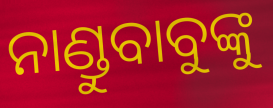
ନାଣ୍ଡୁବାବୁଙ୍କୁ